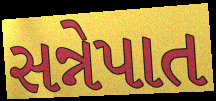
સન્નેપાત